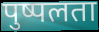
पुष्पलता